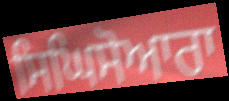
ਸਿਘਿਸੋਆਰਾ